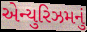
એન્યુરિઝમનું